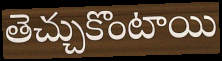
తెచ్చుకొంటాయి